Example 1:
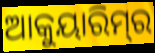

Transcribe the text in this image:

ଆକୁୟାରିମ୍‌ର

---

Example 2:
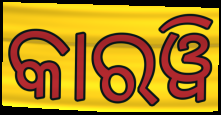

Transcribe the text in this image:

କାରୱି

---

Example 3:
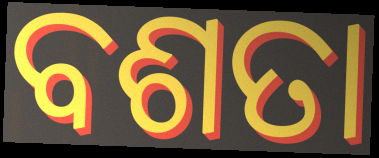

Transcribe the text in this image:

ବଶତା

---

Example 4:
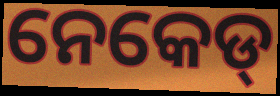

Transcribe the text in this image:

ନେକେଡ୍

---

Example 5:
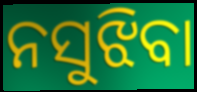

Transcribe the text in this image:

ନସୁଝିବା